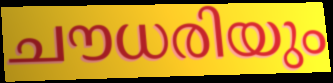
ചൗധരിയും